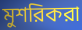
মুশরিকরা